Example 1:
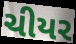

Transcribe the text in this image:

ચીયર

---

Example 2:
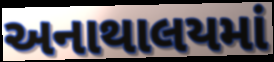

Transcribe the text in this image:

અનાથાલયમાં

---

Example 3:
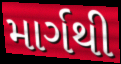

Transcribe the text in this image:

માર્ગથી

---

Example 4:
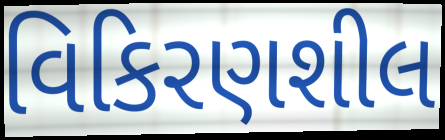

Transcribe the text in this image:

વિકિરણશીલ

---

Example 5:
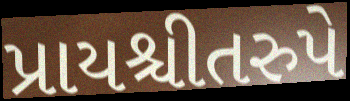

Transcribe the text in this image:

પ્રાયશ્ચીતરુપે